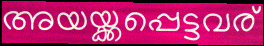
അയയ്ക്കപ്പെട്ടവര്